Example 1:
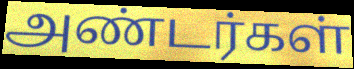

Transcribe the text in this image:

அண்டர்கள்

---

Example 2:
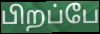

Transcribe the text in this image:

பிறப்பே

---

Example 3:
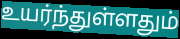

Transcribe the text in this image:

உயர்ந்துள்ளதும்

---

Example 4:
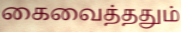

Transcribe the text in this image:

கைவைத்ததும்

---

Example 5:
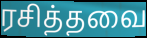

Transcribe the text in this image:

ரசித்தவை